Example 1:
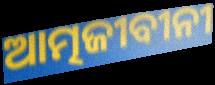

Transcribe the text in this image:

ଆତ୍ମଜୀବୀନୀ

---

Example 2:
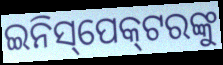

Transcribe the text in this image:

ଇନିସ୍‌ପେକ୍‍ଟରଙ୍କୁ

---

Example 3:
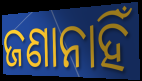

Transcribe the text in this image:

ଜଣାନାହିଁ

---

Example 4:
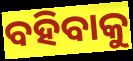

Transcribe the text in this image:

ବହିବାକୁ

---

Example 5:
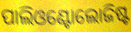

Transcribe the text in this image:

ପାଲିଓଣ୍ଟୋଲୋଜିଷ୍ଟ